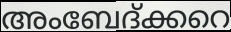
അംബേദ്ക്കറെ